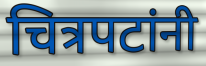
चित्रपटांनी